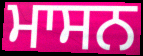
ਮਾਸਨ